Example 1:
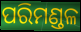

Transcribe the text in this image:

ପରିମଣ୍ଡଳ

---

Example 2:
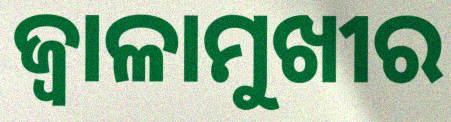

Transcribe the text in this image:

ଜ୍ୱାଳାମୁଖୀର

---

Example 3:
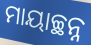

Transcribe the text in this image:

ମାୟାଚ୍ଛନ୍ନ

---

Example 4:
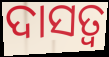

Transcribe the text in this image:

ଦାସତ୍ଵ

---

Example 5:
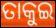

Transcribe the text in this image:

ତାକୁଇ